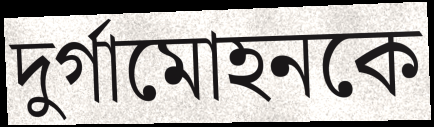
দুর্গামোহনকে